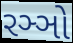
રઞ્ઞો